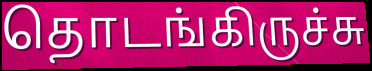
தொடங்கிருச்சு